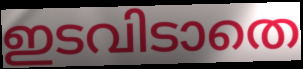
ഇടവിടാതെ